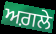
ਅਗ਼ਲੇ